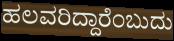
ಹಲವರಿದ್ದಾರೆಂಬುದು